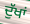
ਦੁੱਖਾਂ